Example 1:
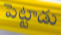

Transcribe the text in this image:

పెట్టాడు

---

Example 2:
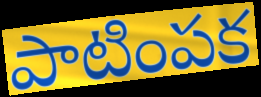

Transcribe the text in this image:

పాటింపక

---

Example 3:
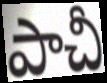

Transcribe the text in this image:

పాచీ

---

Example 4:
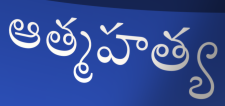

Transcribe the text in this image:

ఆత్మహత్య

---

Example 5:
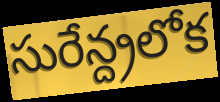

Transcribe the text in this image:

సురేన్ద్రలోక